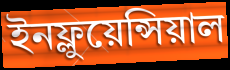
ইনফ্লুয়েন্সিয়াল